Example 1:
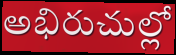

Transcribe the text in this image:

అభిరుచుల్లో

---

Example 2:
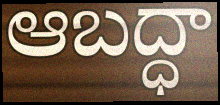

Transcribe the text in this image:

ఆబద్ధా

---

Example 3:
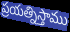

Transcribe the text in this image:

ప్రయత్నిస్తాము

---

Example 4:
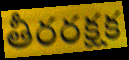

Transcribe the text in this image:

తీరరక్షక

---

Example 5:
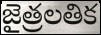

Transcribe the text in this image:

జైత్రలతిక